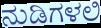
ನುಡಿಗಳಲಿ